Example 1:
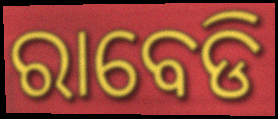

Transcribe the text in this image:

ରାବେଡି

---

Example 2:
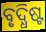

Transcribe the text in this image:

ବୃଦ୍ଧିଷ୍ଟ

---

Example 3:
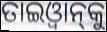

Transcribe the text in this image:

ତାଇଓ୍ବାନ୍‌କୁ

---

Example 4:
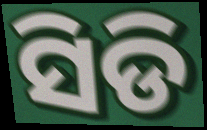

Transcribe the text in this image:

ସିଡି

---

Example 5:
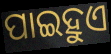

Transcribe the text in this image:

ପାଇହୁଏ